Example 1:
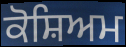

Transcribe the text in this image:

ਕੋਸ਼ਿਅਮ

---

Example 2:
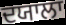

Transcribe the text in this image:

ਦਯਾਲਾ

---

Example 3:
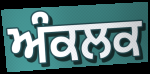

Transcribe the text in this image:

ਅੰਕਲਕ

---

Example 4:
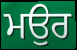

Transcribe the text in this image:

ਮਉਰ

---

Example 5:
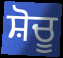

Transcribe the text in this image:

ਸ਼ੋਚੂ